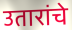
उतारांचे